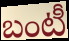
బంటీ